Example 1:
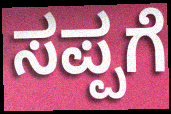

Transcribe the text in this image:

ಸಪ್ಪಗೆ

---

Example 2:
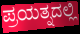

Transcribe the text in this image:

ಪ್ರಯತ್ನದಲ್ಲಿ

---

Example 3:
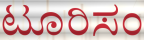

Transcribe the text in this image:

ಟೂರಿಸಂ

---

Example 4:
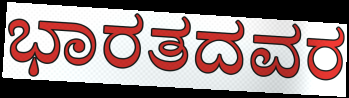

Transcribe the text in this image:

ಭಾರತದವರ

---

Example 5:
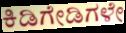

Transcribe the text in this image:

ಕಿಡಿಗೇಡಿಗಳೇ